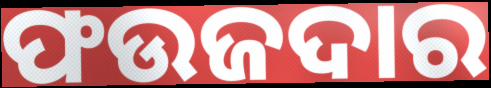
ଫଉଜଦାର